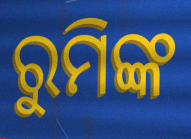
ରୁମିଙ୍କ